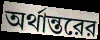
অর্থান্তরের